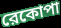
রেকোপা